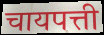
चायपत्ती